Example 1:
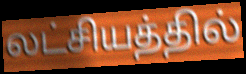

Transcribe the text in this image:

லட்சியத்தில்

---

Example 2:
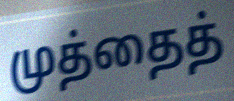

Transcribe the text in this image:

முத்தைத்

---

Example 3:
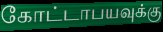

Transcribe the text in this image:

கோட்டாபயவுக்கு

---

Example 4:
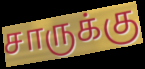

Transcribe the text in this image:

சாருக்கு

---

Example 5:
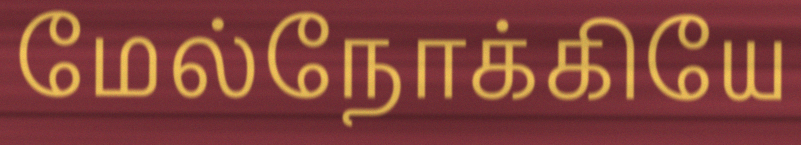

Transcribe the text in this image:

மேல்நோக்கியே